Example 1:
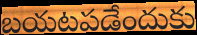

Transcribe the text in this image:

బయటపడేందుకు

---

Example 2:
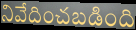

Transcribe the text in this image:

నివేదించబడింది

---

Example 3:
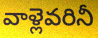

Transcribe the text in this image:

వాళ్లెవరినీ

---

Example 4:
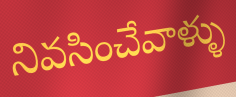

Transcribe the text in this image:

నివసించేవాళ్ళు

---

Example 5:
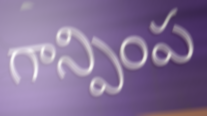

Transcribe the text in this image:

గాన్పింప